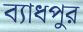
ব্যাধপুর